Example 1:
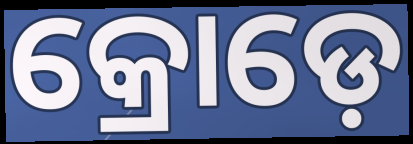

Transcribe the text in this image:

କ୍ରୋଡ଼େ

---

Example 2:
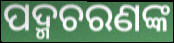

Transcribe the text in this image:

ପଦ୍ମଚରଣଙ୍କ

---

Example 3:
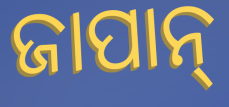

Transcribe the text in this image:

ଜାପାନ୍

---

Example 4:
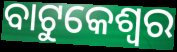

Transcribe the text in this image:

ବାଟୁକେଶ୍ୱର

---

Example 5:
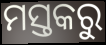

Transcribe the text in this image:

ମସ୍ତକରୁ